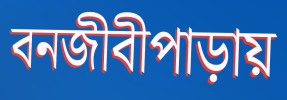
বনজীবীপাড়ায়